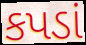
કપડાં